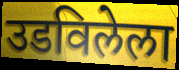
उडविलेला